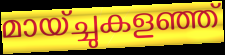
മായ്ച്ചുകളഞ്ഞ്